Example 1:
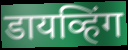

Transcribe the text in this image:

डायव्हिंग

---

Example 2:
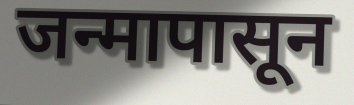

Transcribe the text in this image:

जन्मापासून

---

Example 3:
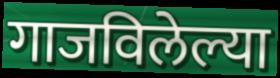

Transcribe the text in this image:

गाजविलेल्या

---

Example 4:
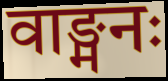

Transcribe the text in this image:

वाङ्मनः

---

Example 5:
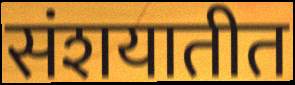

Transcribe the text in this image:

संशयातीत